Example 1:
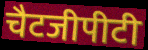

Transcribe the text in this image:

चैटजीपीटी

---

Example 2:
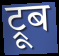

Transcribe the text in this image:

ट्रूब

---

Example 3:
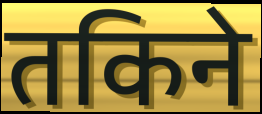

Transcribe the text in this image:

तकिने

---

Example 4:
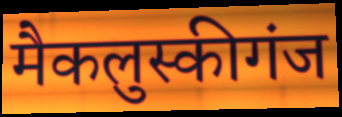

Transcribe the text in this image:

मैकलुस्कीगंज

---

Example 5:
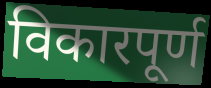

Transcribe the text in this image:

विकारपूर्ण